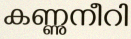
കണ്ണുനീറി